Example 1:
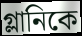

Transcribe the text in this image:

গ্লানিকে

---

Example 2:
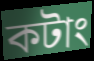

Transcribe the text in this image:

কটাং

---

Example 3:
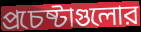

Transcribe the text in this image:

প্রচেষ্টাগুলোর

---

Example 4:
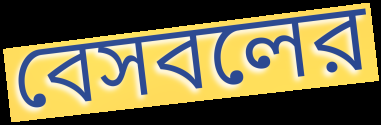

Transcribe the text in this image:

বেসবলের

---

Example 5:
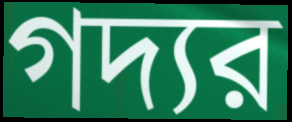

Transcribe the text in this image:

গদ্যর